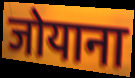
जोयाना